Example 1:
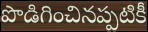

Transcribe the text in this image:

పొడిగించినప్పటికీ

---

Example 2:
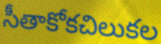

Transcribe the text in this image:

సీతాకోకచిలుకల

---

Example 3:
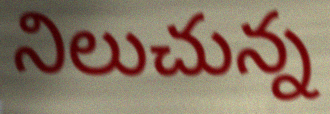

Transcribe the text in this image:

నిలుచున్న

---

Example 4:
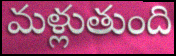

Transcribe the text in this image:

మళ్లుతుంది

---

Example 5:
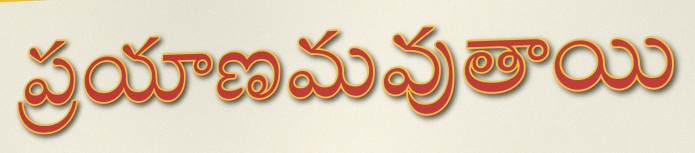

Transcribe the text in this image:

ప్రయాణమవుతాయి